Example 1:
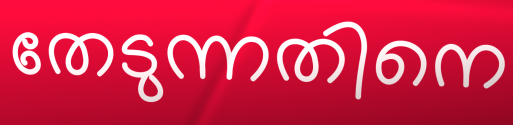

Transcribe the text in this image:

തേടുന്നതിനെ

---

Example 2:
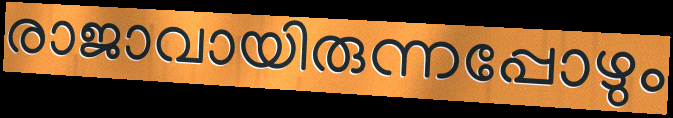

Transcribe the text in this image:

രാജാവായിരുന്നപ്പോഴും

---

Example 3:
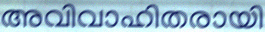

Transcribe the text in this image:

അവിവാഹിതരായി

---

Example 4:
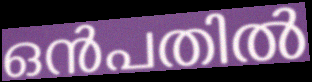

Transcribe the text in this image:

ഒൻപതിൽ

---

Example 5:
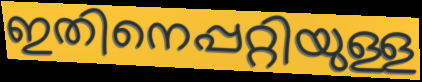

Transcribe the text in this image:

ഇതിനെപ്പറ്റിയുള്ള